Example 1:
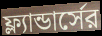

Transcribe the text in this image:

ফ্ল্যান্ডার্সের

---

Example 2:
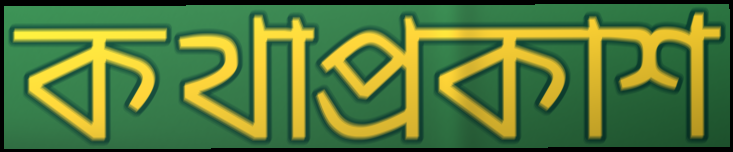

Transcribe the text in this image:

কথাপ্রকাশ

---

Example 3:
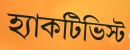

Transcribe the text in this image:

হ্যাকটিভিস্ট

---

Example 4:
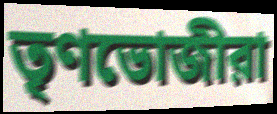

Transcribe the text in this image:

তৃণভোজীরা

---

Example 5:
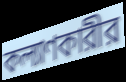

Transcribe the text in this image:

কল্যাণকারীর